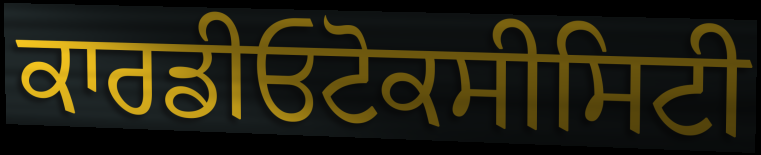
ਕਾਰਡੀਓਟੋਕਸੀਸਿਟੀ